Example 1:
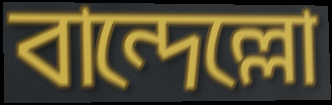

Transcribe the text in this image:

বান্দেল্লো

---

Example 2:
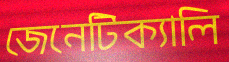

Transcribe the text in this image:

জেনেটিক্যালি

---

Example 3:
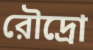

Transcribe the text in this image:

রৌদ্রো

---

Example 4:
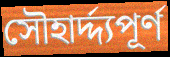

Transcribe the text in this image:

সৌহার্দ্দ্যপূর্ণ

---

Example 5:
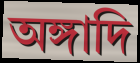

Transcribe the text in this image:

অঙ্গাদি